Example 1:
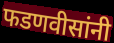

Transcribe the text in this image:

फडणवीसांनी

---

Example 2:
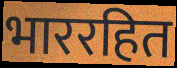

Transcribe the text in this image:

भाररहित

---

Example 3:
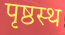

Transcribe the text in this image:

पृष्ठस्थ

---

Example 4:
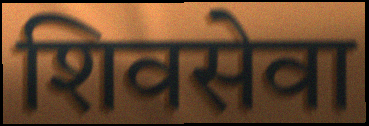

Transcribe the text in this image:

शिवसेवा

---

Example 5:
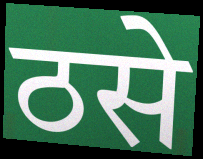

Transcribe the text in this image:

ठसे